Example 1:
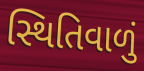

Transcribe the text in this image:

સ્થિતિવાળું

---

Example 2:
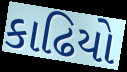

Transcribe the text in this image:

કાઢિયો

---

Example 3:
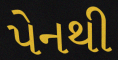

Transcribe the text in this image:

પેનથી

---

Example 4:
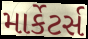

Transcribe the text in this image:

માર્કેટર્સ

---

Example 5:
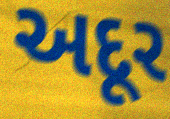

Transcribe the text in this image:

અદૂર